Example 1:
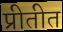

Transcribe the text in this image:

प्रीतीत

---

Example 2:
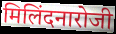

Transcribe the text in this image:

मिलिंदनारोजी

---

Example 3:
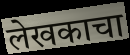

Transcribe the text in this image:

लेखकाचा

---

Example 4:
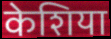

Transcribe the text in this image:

केशिया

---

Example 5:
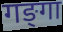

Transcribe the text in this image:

गङ्गा